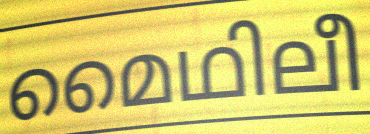
മൈഥിലീ